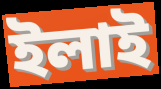
ইলাই